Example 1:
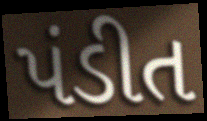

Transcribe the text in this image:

પંડીત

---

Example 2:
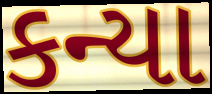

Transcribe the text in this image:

કન્યા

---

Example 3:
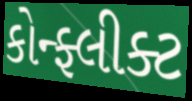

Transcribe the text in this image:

કોન્ફ્લીક્ટ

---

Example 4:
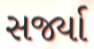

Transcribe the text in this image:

સર્જ્યા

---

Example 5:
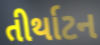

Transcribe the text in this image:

તીર્થાટન